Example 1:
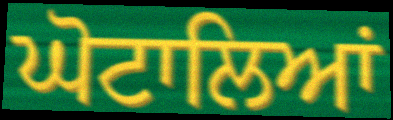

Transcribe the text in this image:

ਘੋਟਾਲਿਆਂ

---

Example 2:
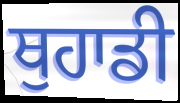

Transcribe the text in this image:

ਥੁਹਾਡੀ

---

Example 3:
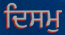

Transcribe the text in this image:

ਦਿਸਮੁ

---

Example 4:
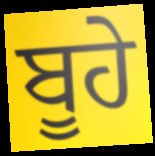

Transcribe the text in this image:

ਬੂਹੇ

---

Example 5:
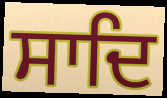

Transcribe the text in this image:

ਸਾਦਿ